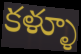
కళ్ళూ